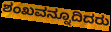
ಶಂಖವನ್ನೂದಿದರು